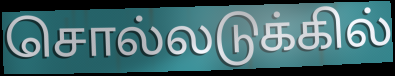
சொல்லடுக்கில்